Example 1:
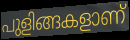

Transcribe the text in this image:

പുളിങ്ങകളാണ്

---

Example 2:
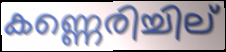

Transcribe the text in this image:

കണ്ണെരിച്ചില്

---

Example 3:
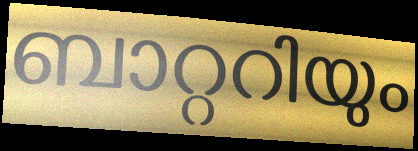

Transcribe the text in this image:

ബാറ്ററിയും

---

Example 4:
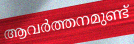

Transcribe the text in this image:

ആവർത്തനമുണ്ട്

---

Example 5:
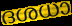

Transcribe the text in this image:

ദശധാ